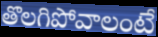
తొలగిపోవాలంటే